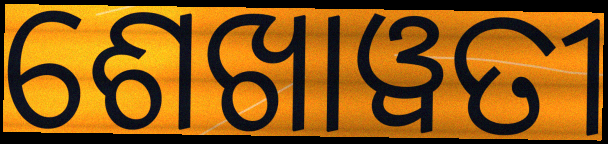
ଶେଖାୱତୀ